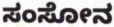
ಸಂಸೋನ